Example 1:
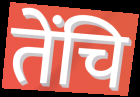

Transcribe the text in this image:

तेंचि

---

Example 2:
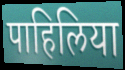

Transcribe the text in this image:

पाहिलिया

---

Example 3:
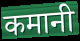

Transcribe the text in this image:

कमानी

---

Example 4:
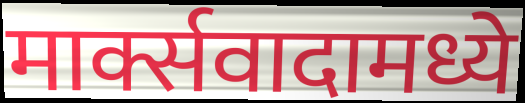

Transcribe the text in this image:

मार्क्सवादामध्ये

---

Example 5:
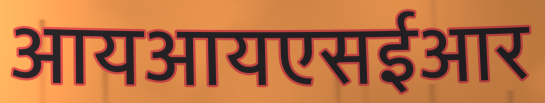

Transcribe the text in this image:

आयआयएसईआर